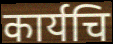
कार्यचि